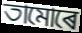
তামোৰে